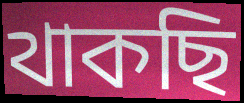
থাকছি